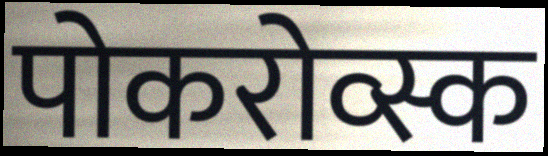
पोकरोव्स्क